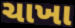
ચાખા